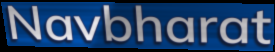
Navbharat